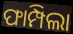
ଫାମ୍ପିଲା